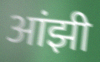
आंझी